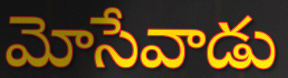
మోసేవాడు